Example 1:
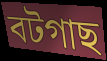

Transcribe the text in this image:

বটগাছ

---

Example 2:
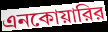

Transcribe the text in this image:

এনকোয়ারির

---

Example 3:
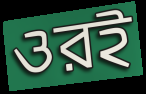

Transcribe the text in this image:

ওরই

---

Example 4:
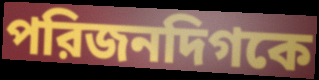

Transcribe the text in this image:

পরিজনদিগকে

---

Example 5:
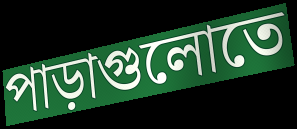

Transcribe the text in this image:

পাড়াগুলোতে